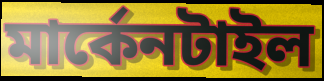
মার্কেনটাইল